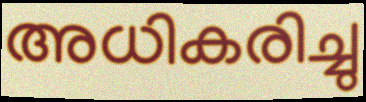
അധികരിച്ചു